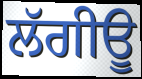
ਲੱਗੀਊ